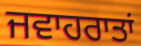
ਜਵਾਹਰਾਤਾਂ